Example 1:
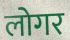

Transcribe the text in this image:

लोगर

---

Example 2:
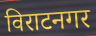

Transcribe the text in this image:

विराटनगर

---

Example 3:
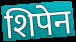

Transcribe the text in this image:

शिपेन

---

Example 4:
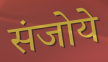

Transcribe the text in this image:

संजोये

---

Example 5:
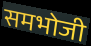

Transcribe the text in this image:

समभोजी